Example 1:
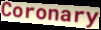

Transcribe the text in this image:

Coronary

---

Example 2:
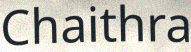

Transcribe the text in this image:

Chaithra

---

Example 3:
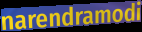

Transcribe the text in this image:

narendramodi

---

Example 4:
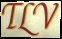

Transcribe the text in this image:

TLV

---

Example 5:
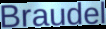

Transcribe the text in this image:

Braudel